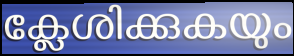
ക്ലേശിക്കുകയും